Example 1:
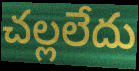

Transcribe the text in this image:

చల్లలేదు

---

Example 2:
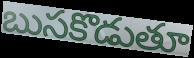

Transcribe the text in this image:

బుసకొడుతూ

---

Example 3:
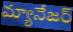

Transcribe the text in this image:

మ్యానేజర్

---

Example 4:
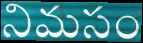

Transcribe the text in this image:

నిమసం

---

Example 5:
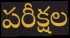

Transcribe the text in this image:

పరీక్షల